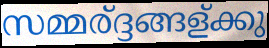
സമ്മര്ദ്ദങ്ങള്ക്കു